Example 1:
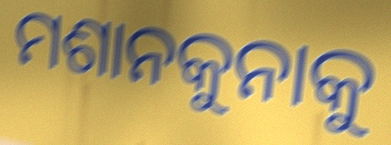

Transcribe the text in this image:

ମଶାନକୁନାକୁ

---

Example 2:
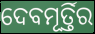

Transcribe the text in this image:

ଦେବମୂର୍ତ୍ତିର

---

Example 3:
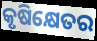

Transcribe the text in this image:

କୃଷିକ୍ଷେତର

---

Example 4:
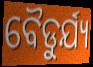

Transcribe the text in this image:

ବୈଡୁର୍ଯ୍ୟ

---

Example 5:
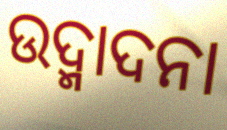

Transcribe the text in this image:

ଉଦ୍ମାଦନା